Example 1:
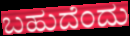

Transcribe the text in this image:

ಬಹುದೆಂದು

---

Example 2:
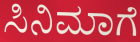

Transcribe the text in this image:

ಸಿನಿಮಾಗೆ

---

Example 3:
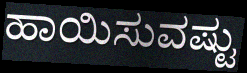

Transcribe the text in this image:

ಹಾಯಿಸುವಷ್ಟು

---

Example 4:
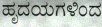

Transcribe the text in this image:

ಹೃದಯಗಳಿಂದ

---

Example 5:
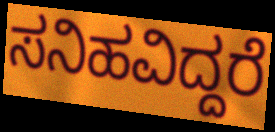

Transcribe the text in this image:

ಸನಿಹವಿದ್ದರೆ